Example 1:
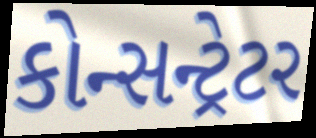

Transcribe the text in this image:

કોન્સન્ટ્રેટર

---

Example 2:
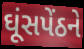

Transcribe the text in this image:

ઘૂંસપેંઠને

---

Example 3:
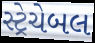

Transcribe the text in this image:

સ્ટ્રેચેબલ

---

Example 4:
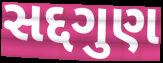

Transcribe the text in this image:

સદ્દગુણ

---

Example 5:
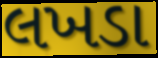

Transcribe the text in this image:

લખડા